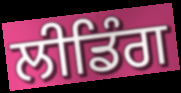
ਲੀਡਿੰਗ